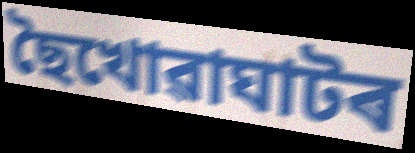
ছৈখোৱাঘাটৰ